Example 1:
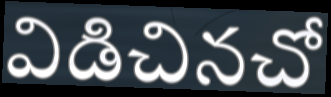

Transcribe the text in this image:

విడిచినచో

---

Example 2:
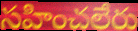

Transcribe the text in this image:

సహించలేరు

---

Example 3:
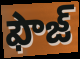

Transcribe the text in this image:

ఫౌజ్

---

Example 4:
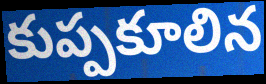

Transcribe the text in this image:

కుప్పకూలిన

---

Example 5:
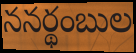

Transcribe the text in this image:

ననర్థంబుల